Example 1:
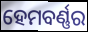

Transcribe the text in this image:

ହେମବର୍ଣ୍ଣର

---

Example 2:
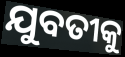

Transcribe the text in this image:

ଯୁବତୀକୁ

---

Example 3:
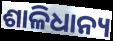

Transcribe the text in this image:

ଶାଳିଧାନ୍ୟ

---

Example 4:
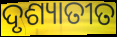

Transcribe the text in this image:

ଦୃଶ୍ୟାତୀତ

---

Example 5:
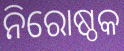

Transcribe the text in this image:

ନିରୋଷ୍ଠକ